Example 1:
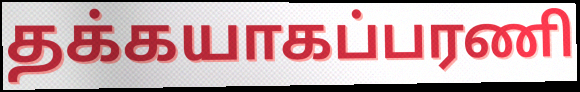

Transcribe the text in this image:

தக்கயாகப்பரணி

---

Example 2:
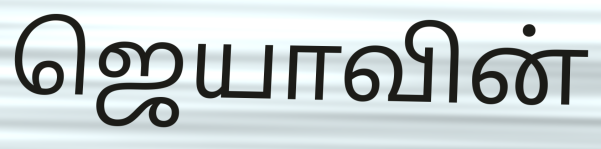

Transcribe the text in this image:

ஜெயாவின்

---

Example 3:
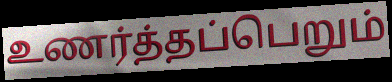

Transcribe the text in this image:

உணர்த்தப்பெறும்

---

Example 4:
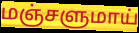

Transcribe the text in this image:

மஞ்சளுமாய்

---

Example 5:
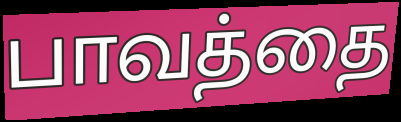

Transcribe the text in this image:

பாவத்தை